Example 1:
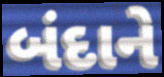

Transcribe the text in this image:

બંદાને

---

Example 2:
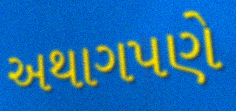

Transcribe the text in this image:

અથાગપણે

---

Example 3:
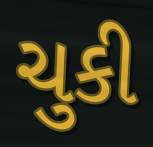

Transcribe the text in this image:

ચુકી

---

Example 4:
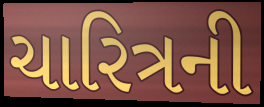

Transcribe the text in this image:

ચારિત્રની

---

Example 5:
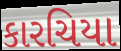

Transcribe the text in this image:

કારચિયા